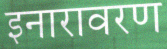
इनारावरण